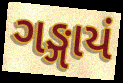
ગઙ્ગાયં